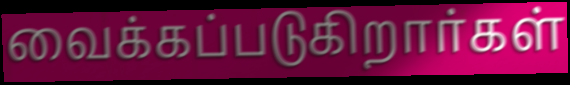
வைக்கப்படுகிறார்கள்